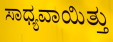
ಸಾಧ್ಯವಾಯಿತ್ತು